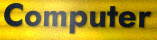
Computer